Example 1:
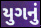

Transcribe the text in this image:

યુગનું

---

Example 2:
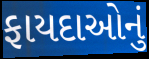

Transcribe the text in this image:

ફાયદાઓનું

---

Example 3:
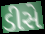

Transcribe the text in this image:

ડીસે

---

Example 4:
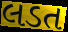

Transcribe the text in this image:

લડત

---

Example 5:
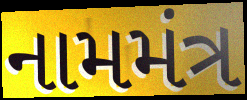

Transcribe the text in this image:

નામમંત્ર